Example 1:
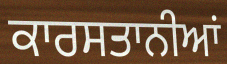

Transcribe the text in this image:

ਕਾਰਸਤਾਨੀਆਂ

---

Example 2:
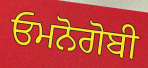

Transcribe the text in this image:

ਓਮਨੋਗੋਬੀ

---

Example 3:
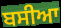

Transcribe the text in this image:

ਬਸੀਆ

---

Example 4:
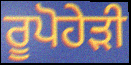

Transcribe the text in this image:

ਰੂਪੋਹੇੜੀ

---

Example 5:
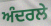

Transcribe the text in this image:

ਅੰਦਰਲੇ